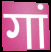
गां